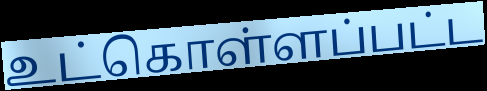
உட்கொள்ளப்பட்ட